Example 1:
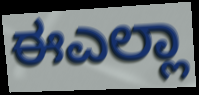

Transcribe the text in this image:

ಈಎಲ್ಲಾ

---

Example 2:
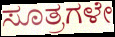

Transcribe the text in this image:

ಸೂತ್ರಗಳೇ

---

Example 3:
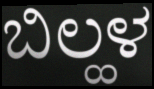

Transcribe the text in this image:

ಬಿಲ್ಹಳ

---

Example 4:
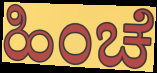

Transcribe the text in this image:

ಹಿಂಚೆ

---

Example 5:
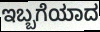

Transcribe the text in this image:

ಇಬ್ಬಗೆಯಾದ